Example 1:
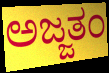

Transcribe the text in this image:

ಅಜ್ಜತಂ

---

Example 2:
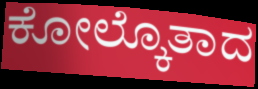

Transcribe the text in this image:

ಕೋಲ್ಕೊತಾದ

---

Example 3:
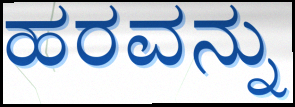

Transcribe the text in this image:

ಹರವನ್ನು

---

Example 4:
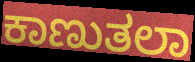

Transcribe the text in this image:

ಕಾಣುತಲಾ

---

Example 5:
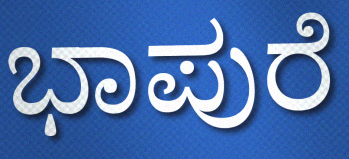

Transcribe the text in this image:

ಭಾಪುರೆ